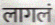
लागलं